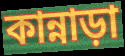
কান্নাড়া